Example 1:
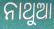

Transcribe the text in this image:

ନାଥୁଆ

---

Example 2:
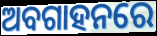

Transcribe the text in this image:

ଅବଗାହନରେ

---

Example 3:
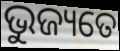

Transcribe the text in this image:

ଭୁଜ୍ୟତେ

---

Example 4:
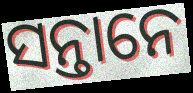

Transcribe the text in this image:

ସନ୍ତାନେ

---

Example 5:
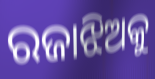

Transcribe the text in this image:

ରଜାଝିଅକୁ